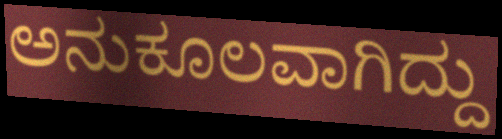
ಅನುಕೂಲವಾಗಿದ್ದು